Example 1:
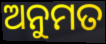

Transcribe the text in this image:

ଅନୁମତ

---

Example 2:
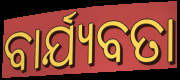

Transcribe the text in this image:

ବାର୍ଯ୍ୟବତା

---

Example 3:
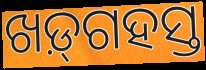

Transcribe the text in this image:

ଖଡ଼୍‌ଗହସ୍ତ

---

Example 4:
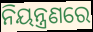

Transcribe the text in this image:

ନିୟନ୍ତ୍ରଣରେ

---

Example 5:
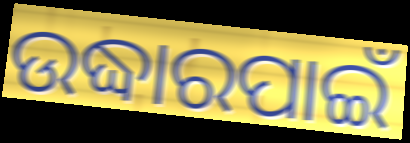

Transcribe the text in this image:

ଉଦ୍ଧାରପାଇଁ